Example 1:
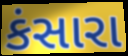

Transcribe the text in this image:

કંસારા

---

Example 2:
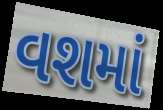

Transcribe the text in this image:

વશમાં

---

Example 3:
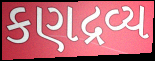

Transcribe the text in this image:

કણદ્રવ્ય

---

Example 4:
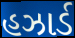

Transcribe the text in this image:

હઝાર્ડ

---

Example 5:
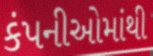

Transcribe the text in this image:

કંપનીઓમાંથી